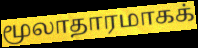
மூலாதாரமாகக்